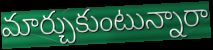
మార్చుకుంటున్నారా